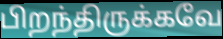
பிறந்திருக்கவே